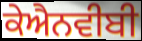
ਕੇਐਨਵੀਬੀ